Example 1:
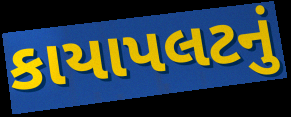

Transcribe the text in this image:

કાયાપલટનું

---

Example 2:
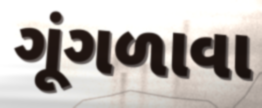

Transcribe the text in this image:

ગૂંગળાવા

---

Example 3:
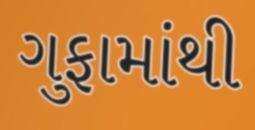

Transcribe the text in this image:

ગુફામાંથી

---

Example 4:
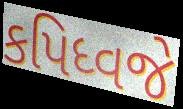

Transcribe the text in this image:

કપિધ્વજે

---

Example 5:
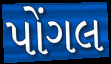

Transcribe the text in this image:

પોંગલ